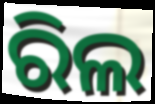
ରିଲ